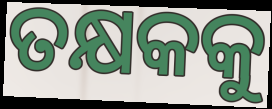
ତକ୍ଷକକୁ